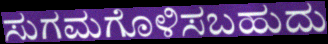
ಸುಗಮಗೊಳಿಸಬಹುದು